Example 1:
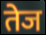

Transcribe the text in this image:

तेज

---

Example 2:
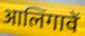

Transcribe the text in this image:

आलिंगावें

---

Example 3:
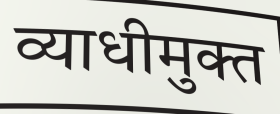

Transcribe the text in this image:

व्याधीमुक्त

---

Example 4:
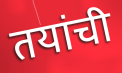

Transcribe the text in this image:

तयांची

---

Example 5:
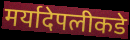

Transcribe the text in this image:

मर्यादेपलीकडे